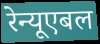
रेन्यूएबल